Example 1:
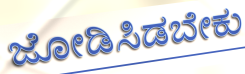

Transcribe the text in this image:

ಜೋಡಿಸಿಡಬೇಕು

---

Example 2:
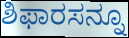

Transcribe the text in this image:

ಶಿಫಾರಸನ್ನೂ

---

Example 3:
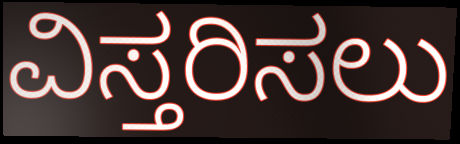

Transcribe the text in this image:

ವಿಸ್ತರಿಸಲು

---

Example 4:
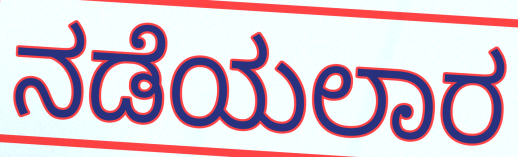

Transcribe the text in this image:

ನಡೆಯಲಾರ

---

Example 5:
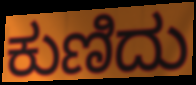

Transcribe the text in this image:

ಕುಣಿದು